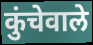
कुंचेवाले